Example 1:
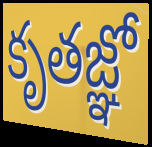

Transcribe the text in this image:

కృతజ్ఞో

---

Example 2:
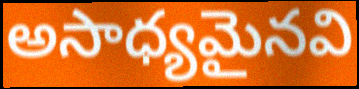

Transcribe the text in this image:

అసాధ్యమైనవి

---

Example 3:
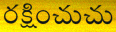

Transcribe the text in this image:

రక్షించుచు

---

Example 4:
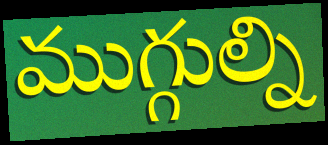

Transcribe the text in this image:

ముగ్గుల్ని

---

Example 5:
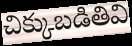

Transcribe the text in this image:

చిక్కుబడితివి